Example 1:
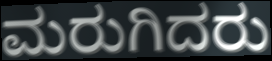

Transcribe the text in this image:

ಮರುಗಿದರು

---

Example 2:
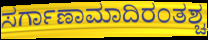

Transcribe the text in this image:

ಸರ್ಗಾಣಾಮಾದಿರಂತಶ್ಚ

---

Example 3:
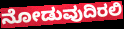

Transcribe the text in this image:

ನೋಡುವುದಿರಲಿ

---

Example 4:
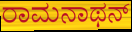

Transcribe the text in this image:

ರಾಮನಾಥನ್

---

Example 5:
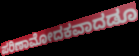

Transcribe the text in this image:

ಪರಿಣಾಮೋದಕವಾದಡೂ